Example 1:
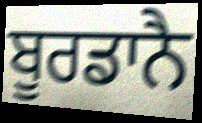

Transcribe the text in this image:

ਬੂਰਡਾਨੈ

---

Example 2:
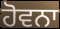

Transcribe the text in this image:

ਹੋਵਨਾ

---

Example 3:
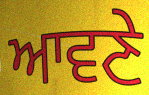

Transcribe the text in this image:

ਆਵਣੇ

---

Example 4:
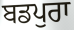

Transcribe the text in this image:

ਬਡਪੁਰਾ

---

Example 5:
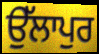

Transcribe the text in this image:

ਉੱਲਾਪੁਰ